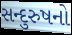
સન્દુરુષનો